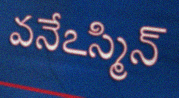
వనేఽస్మిన్